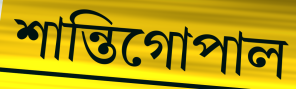
শান্তিগোপাল